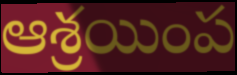
ఆశ్రయింప